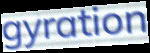
gyration